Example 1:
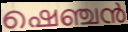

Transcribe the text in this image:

ഷെഞ്ചൻ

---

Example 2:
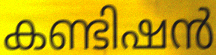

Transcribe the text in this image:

കണ്ടിഷൻ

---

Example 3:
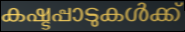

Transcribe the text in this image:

കഷ്ടപ്പാടുകൾക്ക്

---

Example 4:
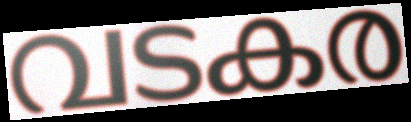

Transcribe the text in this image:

വടകര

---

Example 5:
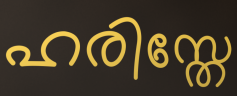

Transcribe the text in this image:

ഹരിസ്തേ